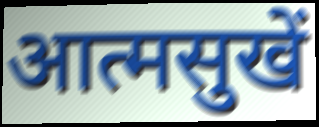
आत्मसुखें